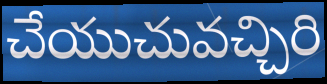
చేయుచువచ్చిరి